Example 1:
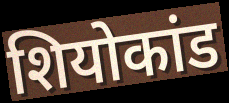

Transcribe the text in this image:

शियोकांड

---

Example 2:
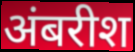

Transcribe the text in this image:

अंबरीश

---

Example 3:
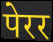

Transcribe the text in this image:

पेरर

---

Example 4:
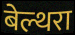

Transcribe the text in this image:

बेल्थरा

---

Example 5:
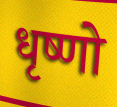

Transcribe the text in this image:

धृष्णो